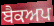
ਬੈਕਅਪ